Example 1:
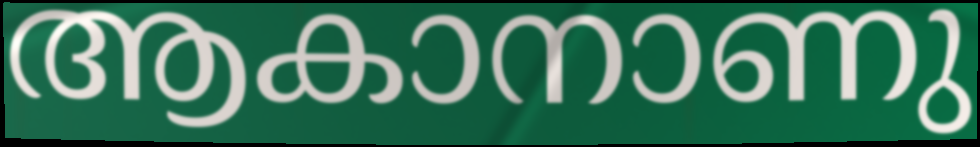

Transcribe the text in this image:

ആകാനാണു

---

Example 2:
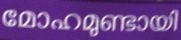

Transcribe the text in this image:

മോഹമുണ്ടായി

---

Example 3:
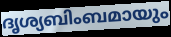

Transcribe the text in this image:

ദൃശ്യബിംബമായും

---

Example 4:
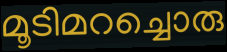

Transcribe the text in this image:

മൂടിമറച്ചൊരു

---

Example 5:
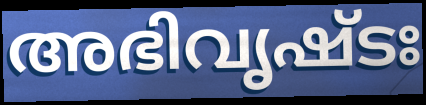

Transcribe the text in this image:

അഭിവൃഷ്ടഃ